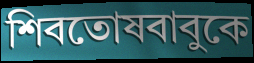
শিবতোষবাবুকে